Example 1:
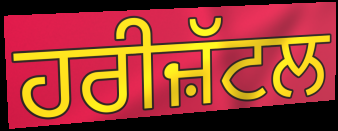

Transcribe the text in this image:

ਹਰੀਜ਼ੱਟਲ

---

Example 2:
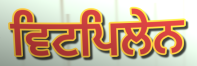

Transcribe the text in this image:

ਵਿਟਪਿਲੇਨ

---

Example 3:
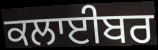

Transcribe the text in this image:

ਕਲਾਈਬਰ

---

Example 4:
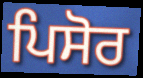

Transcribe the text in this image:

ਪਿਸੋਰ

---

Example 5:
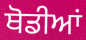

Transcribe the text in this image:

ਥੋਡੀਆਂ